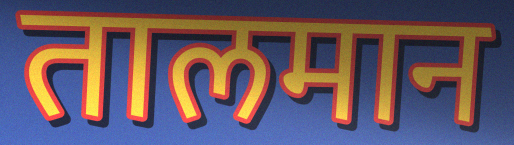
तालमान